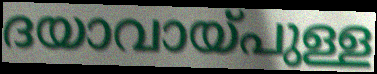
ദയാവായ്പുള്ള